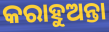
କରାହୁଅନ୍ତା